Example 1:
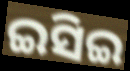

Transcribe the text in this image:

ଇସିଇ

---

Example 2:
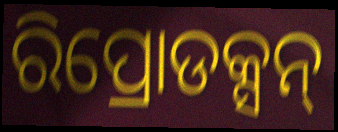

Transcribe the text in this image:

ରିପ୍ରୋଡକ୍ସନ୍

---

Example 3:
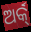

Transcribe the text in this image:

ଅର୍କ୍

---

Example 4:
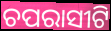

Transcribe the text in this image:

ଚପରାସୀଟି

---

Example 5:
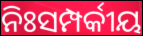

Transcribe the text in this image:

ନିଃସମ୍ପର୍କୀୟ